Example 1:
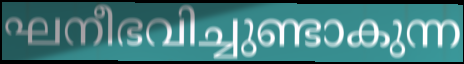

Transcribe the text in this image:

ഘനീഭവിച്ചുണ്ടാകുന്ന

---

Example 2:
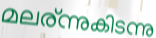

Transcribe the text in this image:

മലര്ന്നുകിടന്നു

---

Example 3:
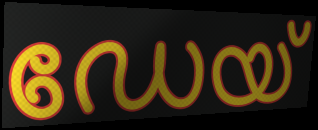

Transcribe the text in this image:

ഡേയ്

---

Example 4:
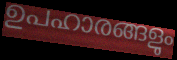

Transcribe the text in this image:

ഉപഹാരങ്ങളും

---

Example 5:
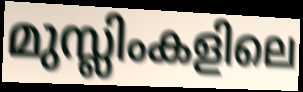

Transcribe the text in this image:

മുസ്ലിംകളിലെ